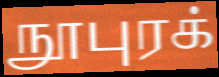
நூபுரக்